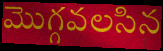
మొగ్గవలసిన